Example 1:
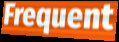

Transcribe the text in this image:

Frequent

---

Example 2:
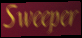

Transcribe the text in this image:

Sweeper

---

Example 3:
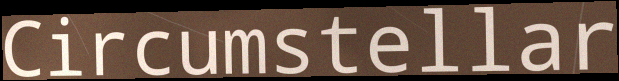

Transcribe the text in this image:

Circumstellar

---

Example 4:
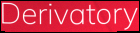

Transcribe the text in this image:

Derivatory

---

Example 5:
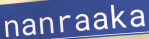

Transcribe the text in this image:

nanraaka